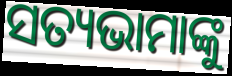
ସତ୍ୟଭାମାଙ୍କୁ